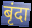
बृंदा